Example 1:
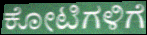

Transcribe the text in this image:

ಕೋಟಿಗಳಿಗೆ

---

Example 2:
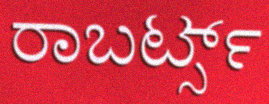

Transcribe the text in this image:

ರಾಬರ್ಟ್ಸ್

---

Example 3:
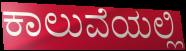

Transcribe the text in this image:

ಕಾಲುವೆಯಲ್ಲಿ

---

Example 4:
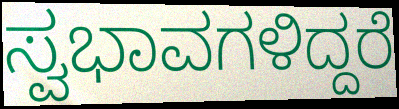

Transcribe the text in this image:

ಸ್ವಭಾವಗಳಿದ್ದರೆ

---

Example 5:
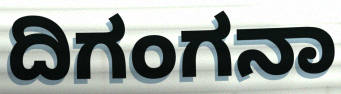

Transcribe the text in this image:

ದಿಗಂಗನಾ